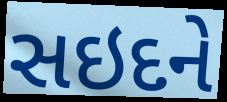
સઇદને